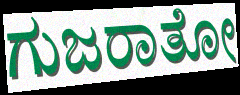
ಗುಜರಾತೋ